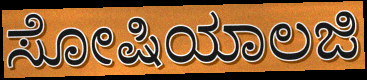
ಸೋಷಿಯಾಲಜಿ